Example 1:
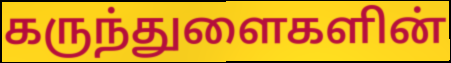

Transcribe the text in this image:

கருந்துளைகளின்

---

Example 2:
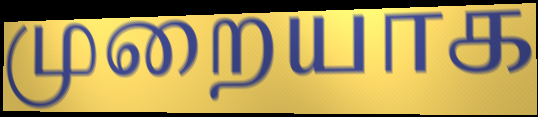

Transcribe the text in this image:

முறையாக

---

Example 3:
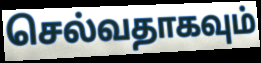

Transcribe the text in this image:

செல்வதாகவும்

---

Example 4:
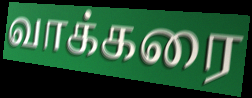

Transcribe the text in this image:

வாக்கரை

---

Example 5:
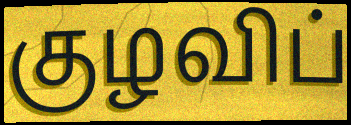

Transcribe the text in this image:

குழவிப்